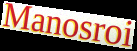
Manosroi